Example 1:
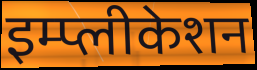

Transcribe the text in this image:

इम्प्लीकेशन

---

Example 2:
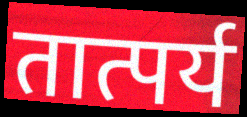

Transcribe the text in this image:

तात्पर्य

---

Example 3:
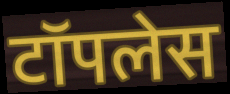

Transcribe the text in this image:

टॉपलेस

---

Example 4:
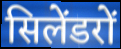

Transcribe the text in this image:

सिलेंडरों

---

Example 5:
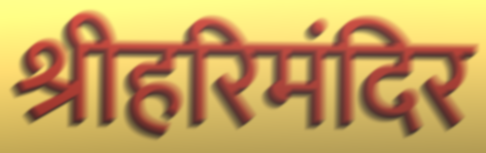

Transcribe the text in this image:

श्रीहरिमंदिर